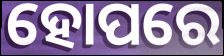
ହୋପରେ